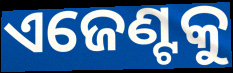
ଏଜେଣ୍ଟକୁ